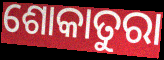
ଶୋକାତୁରା